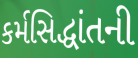
કર્મસિદ્ધાંતની